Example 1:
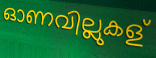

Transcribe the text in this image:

ഓണവില്ലുകള്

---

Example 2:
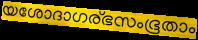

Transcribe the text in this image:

യശോദാഗര്ഭസംഭൂതാം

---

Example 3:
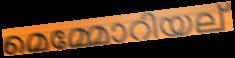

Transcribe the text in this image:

മെമ്മോറിയല്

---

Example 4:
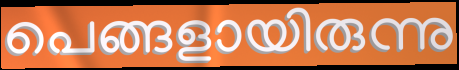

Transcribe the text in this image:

പെങ്ങളായിരുന്നു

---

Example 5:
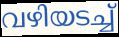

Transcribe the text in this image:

വഴിയടച്ച്